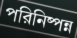
পরিনিষ্পন্ন